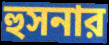
হুসনার